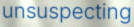
unsuspecting